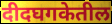
दीदघगकेतील